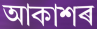
আকাশৰ